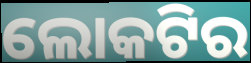
ଲୋକଟିର